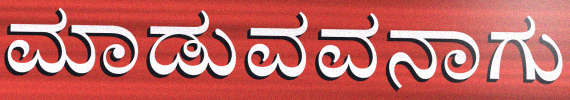
ಮಾಡುವವನಾಗು